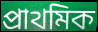
প্ৰাথমিক